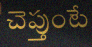
చెప్తుంటే